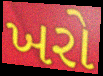
ખરો